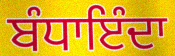
ਬੰਧਾਇੰਦਾ